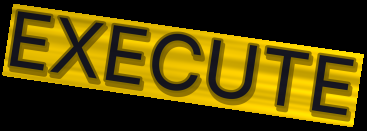
EXECUTE